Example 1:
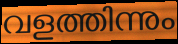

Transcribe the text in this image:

വളത്തിന്നും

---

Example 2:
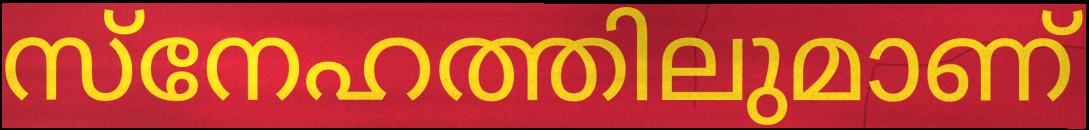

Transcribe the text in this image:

സ്നേഹത്തിലുമാണ്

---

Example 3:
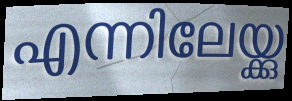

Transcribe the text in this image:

എന്നിലേയ്ക്കു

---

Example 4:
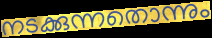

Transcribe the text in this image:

നടക്കുന്നതൊന്നും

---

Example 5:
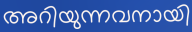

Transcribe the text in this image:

അറിയുന്നവനായി